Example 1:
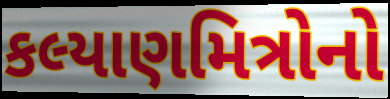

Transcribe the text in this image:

કલ્યાણમિત્રોનો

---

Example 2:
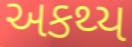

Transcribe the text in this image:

અકથ્ય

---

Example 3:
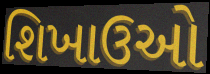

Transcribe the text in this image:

શિખાઉઓ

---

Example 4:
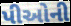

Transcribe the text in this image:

પીઓની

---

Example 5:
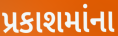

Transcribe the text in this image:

પ્રકાશમાંના